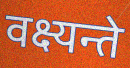
वक्ष्यन्ते